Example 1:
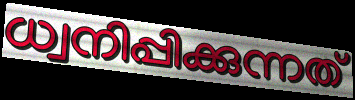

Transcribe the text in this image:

ധ്വനിപ്പിക്കുന്നത്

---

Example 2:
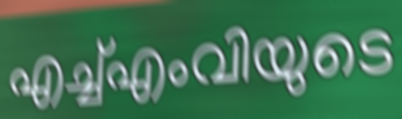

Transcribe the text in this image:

എച്ച്എംവിയുടെ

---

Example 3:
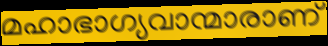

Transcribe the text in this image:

മഹാഭാഗ്യവാന്മാരാണ്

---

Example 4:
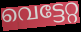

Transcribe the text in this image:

വെട്ടേറ്റ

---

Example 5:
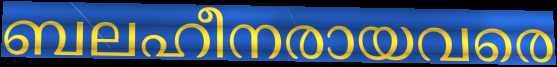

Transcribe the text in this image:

ബലഹീനരായവരെ